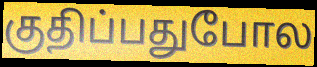
குதிப்பதுபோல